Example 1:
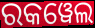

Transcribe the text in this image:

ରକୱେଲ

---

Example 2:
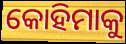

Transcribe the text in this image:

କୋହିମାକୁ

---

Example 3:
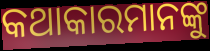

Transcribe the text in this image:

କଥାକାରମାନଙ୍କୁ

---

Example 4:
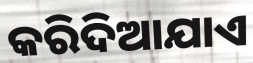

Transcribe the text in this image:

କରିଦିଆଯାଏ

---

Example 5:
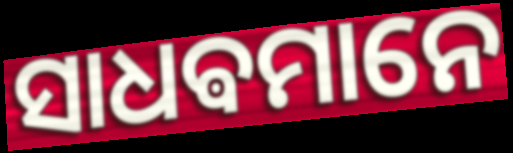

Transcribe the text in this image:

ସାଧଵମାନେ